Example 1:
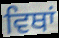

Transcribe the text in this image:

ਵਿਥਾਂ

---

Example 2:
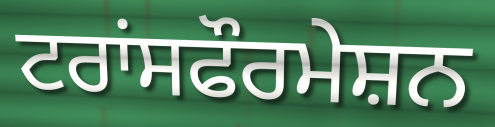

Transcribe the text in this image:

ਟਰਾਂਸਫੌਰਮੇਸ਼ਨ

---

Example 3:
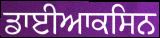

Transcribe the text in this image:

ਡਾਈਆਕਸਿਨ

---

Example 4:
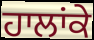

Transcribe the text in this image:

ਹਾਲਾਂਕੇ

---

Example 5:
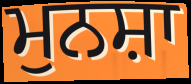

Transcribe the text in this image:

ਮੁਨਸ਼ਾ